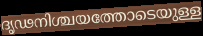
ദൃഢനിശ്ചയത്തോടെയുള്ള